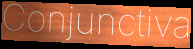
Conjunctiva